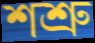
শশ্রু